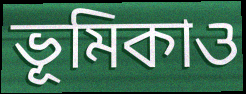
ভূমিকাও